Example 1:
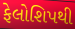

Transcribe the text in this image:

ફેલોશિપથી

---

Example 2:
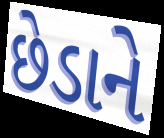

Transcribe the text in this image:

છેડાને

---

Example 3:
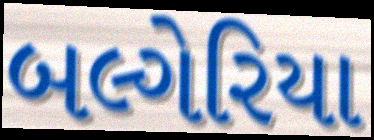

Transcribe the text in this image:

બલ્ગેરિયા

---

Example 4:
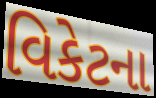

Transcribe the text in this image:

વિકેટના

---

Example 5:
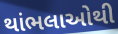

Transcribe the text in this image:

થાંભલાઓથી